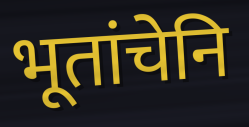
भूतांचेनि